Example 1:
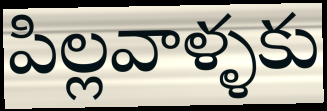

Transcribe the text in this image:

పిల్లవాళ్ళకు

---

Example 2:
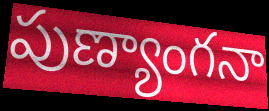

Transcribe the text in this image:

పుణ్యాంగనా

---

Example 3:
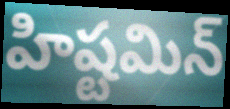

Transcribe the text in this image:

హిష్టమిన్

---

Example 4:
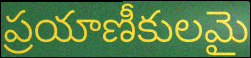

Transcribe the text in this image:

ప్రయాణీకులమై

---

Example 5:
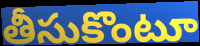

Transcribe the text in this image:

తీసుకొంటూ